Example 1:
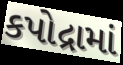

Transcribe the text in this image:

કપોદ્રામાં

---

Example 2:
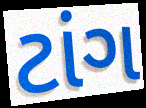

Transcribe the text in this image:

ટાંગ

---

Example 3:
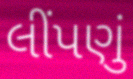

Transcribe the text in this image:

લીંપણું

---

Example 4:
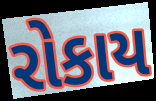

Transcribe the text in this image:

રોકાય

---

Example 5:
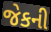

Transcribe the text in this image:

જેકની